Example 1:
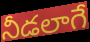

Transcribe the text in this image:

నీడలాగే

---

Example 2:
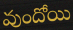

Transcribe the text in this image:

వుందోయి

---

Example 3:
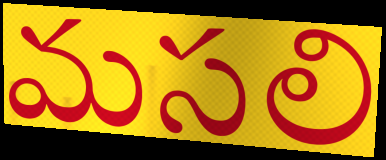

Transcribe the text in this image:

మసలి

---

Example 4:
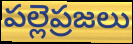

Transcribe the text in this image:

పల్లెప్రజలు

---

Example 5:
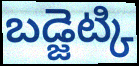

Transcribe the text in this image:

బడ్జెట్కి